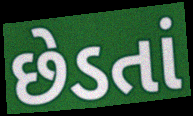
છેડતાં